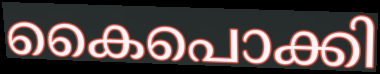
കൈപൊക്കി